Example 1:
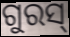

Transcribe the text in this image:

ଗୁରସ୍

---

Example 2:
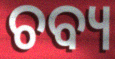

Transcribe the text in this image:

ଚବ୍ୟ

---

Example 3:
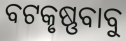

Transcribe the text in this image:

ବଟକୃଷ୍ଣବାବୁ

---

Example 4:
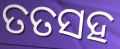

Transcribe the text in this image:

ତତସହ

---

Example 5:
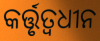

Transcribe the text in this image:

କର୍ତ୍ତୃତ୍ୱଧୀନ